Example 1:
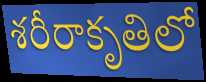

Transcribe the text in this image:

శరీరాకృతిలో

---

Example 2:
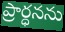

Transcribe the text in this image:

ప్రార్ధనను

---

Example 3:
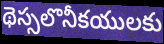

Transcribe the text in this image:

థెస్సలొనీకయులకు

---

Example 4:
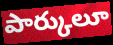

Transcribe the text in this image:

పార్కులూ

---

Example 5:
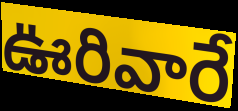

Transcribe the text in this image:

ఊరివారే